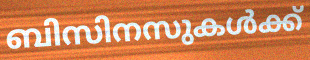
ബിസിനസുകൾക്ക്